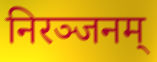
निरञ्जनम्